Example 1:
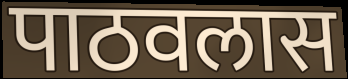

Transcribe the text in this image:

पाठवलास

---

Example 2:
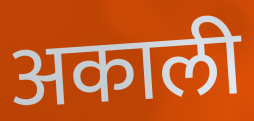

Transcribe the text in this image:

अकाली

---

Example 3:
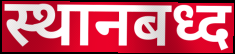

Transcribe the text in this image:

स्थानबध्द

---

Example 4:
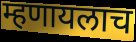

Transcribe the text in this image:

म्हणायलाच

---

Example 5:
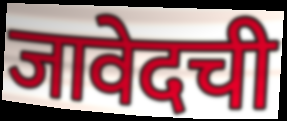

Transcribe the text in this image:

जावेदची